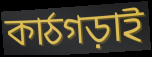
কাঠগড়াই